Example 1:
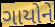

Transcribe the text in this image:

ગાયોને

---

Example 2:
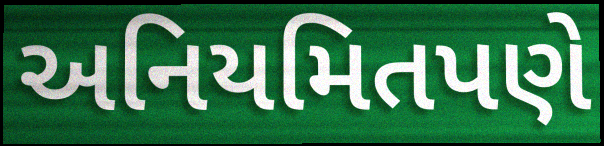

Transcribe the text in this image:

અનિયમિતપણે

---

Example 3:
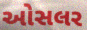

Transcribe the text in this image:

ઓસલર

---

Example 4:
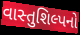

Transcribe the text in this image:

વાસ્તુશિલ્પનો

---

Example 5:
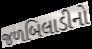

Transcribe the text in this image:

જળબિલાડીનો